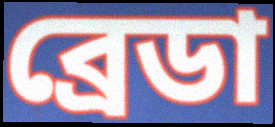
ব্রেডা